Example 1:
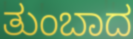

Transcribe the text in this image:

ತುಂಬಾದ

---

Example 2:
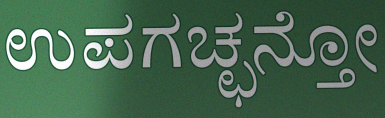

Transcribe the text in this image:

ಉಪಗಚ್ಛನ್ತೋ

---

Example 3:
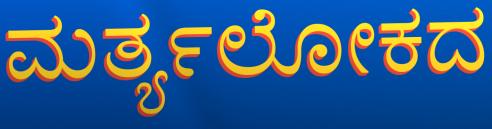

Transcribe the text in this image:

ಮರ್ತ್ಯಲೋಕದ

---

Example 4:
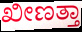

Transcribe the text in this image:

ಖೀಣತ್ತಾ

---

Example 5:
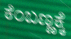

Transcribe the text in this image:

ಕೆಂಬಣ್ಣಕ್ಕೆ